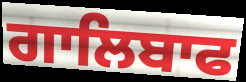
ਗਾਲਿਬਾਫ